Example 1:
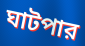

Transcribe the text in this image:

ঘাটপার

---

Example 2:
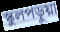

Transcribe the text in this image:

স্কুলপড়ুয়া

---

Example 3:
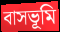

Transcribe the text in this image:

বাসভূমি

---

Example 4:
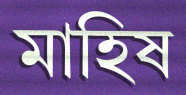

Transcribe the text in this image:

মাহিষ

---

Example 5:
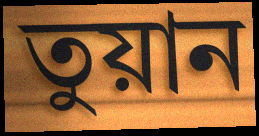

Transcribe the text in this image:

তুয়ান